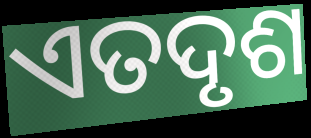
ଏତଦୃଶ